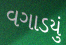
વગાડયું